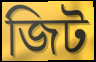
জিট